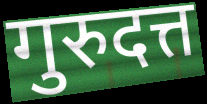
गुरुदत्त